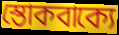
স্তোকবাক্যে